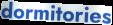
dormitories